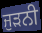
ਜੁੜਨੀ